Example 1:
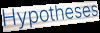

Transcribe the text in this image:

Hypotheses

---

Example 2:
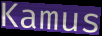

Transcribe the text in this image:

Kamus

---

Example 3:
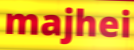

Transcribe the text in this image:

majhei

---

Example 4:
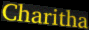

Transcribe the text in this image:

Charitha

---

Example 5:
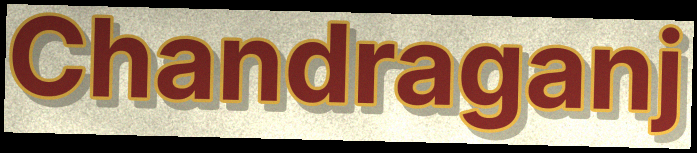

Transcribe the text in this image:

Chandraganj